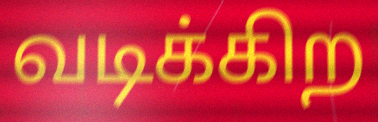
வடிக்கிற